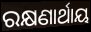
ରକ୍ଷଣାର୍ଥାୟ